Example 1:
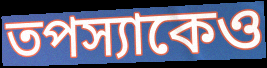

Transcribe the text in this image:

তপস্যাকেও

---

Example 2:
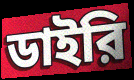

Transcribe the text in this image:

ডাইরি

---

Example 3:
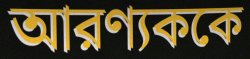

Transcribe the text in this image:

আরণ্যককে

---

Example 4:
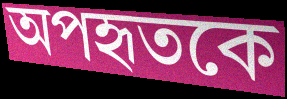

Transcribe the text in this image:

অপহৃতকে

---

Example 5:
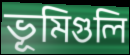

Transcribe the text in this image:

ভূমিগুলি